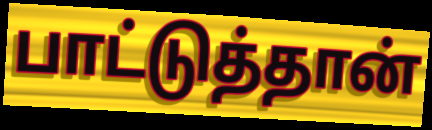
பாட்டுத்தான்